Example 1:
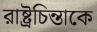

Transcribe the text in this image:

রাষ্ট্রচিন্তাকে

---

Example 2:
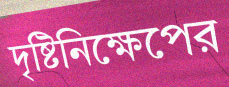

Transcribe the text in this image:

দৃষ্টিনিক্ষেপের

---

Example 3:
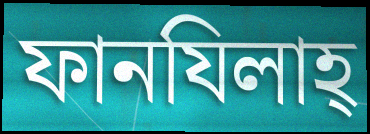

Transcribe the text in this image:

ফানযিলাহ্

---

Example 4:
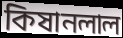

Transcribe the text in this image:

কিষানলাল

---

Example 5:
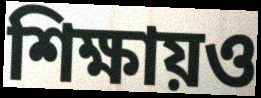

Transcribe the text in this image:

শিক্ষায়ও